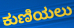
ಕುಣಿಯಲು